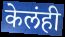
केलंही